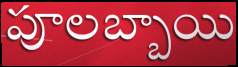
పూలబ్బాయి